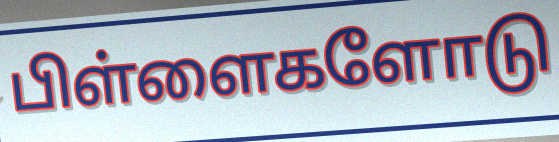
பிள்ளைகளோடு